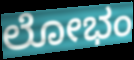
ಲೋಭಂ